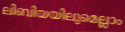
ലിബിയയിലുമെല്ലാം